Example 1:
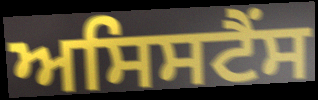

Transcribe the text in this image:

ਅਸਿਸਟੈਂਸ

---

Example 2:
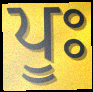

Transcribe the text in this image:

ਪੂਃ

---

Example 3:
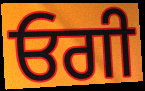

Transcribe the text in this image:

ਓਗੀ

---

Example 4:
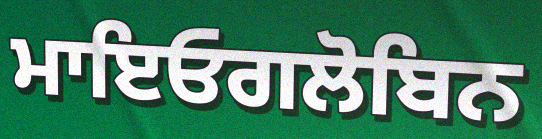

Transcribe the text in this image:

ਮਾਇਓਗਲੋਬਿਨ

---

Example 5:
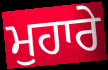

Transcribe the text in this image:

ਮੁਹਾਰੇ